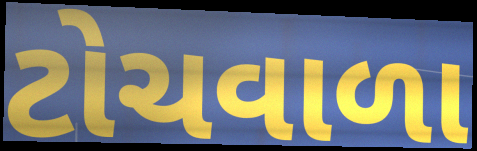
ટોચવાળા